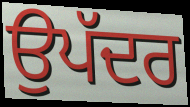
ਉਪੱਦਰ